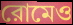
রোমেও